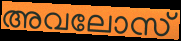
അവലോസ്